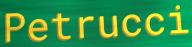
Petrucci